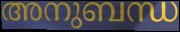
അനുബന്ധ